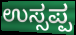
ಉಸ್ಸಪ್ಪ